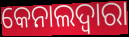
କେନାଲଦ୍ଵାରା